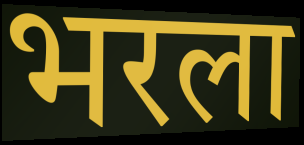
भरला